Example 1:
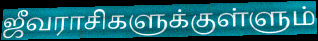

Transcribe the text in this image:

ஜீவராசிகளுக்குள்ளும்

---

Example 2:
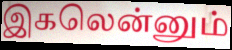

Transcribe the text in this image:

இகலென்னும்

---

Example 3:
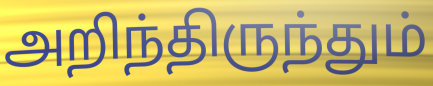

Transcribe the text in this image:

அறிந்திருந்தும்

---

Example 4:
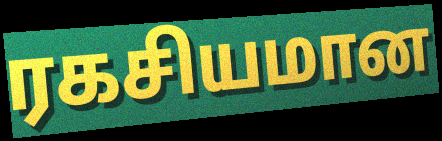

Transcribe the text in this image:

ரகசியமான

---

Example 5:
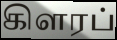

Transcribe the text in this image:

கிளரப்